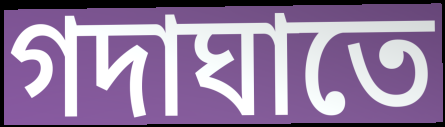
গদাঘাতে